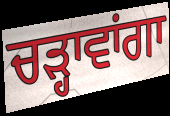
ਚੜ੍ਹਾਵਾਂਗਾ